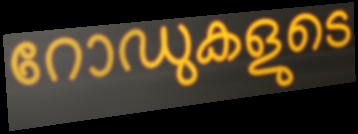
റോഡുകളുടെ